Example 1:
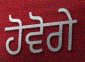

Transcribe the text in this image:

ਹੋਵੋਗੇ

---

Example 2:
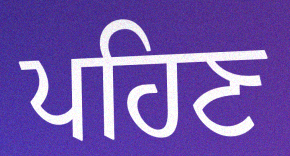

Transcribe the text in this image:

ਪਹਿਣ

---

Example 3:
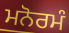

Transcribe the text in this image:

ਮਨੋਰਮੰ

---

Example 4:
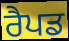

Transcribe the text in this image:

ਰੈਪਡ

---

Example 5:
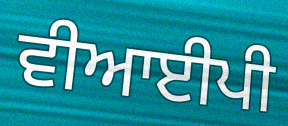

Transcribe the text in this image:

ਵੀਆਈਪੀ